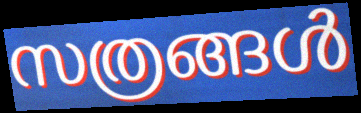
സത്രങ്ങൾ